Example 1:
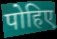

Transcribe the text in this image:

पोहिए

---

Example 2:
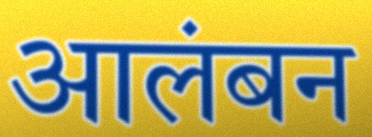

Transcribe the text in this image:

आलंबन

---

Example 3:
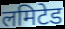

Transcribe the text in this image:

लमिटेड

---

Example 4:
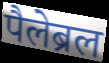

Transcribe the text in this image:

पैलेब्रल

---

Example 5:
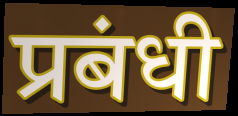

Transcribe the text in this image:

प्रबंधी